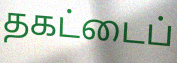
தகட்டைப்